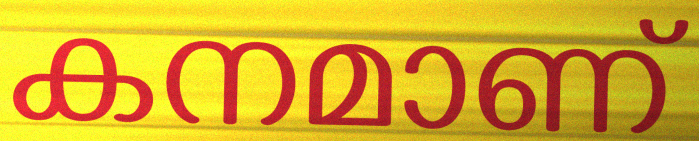
കനമാണ്